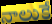
నాలుకే